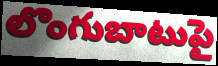
లొంగుబాటుపై